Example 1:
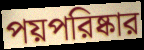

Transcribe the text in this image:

পয়পরিষ্কার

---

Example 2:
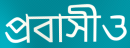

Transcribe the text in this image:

প্রবাসীও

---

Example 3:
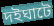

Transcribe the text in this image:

দইঘাটে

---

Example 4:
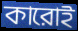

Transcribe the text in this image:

কারোই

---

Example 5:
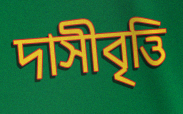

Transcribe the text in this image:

দাসীবৃত্তি